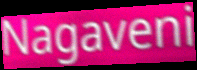
Nagaveni